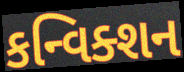
કન્વિક્શન